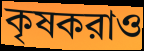
কৃষকরাও